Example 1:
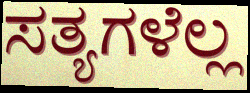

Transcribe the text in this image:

ಸತ್ಯಗಳೆಲ್ಲ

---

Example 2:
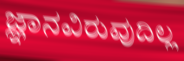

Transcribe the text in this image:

ಜ್ಞಾನವಿರುವುದಿಲ್ಲ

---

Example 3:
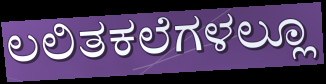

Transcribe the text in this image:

ಲಲಿತಕಲೆಗಳಲ್ಲೂ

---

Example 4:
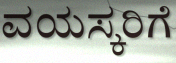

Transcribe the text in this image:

ವಯಸ್ಕರಿಗೆ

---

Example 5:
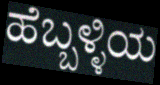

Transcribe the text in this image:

ಹೆಬ್ಬಳ್ಳಿಯ